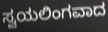
ಸ್ವಯಲಿಂಗವಾದ